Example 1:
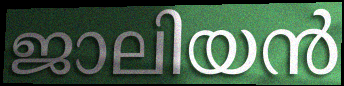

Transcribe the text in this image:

ജാലിയൻ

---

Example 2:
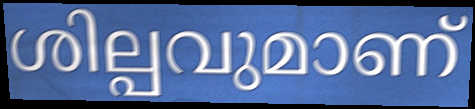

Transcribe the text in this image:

ശില്പവുമാണ്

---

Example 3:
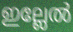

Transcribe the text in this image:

ഇല്ലേൽ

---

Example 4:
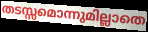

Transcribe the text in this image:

തടസ്സമൊന്നുമില്ലാതെ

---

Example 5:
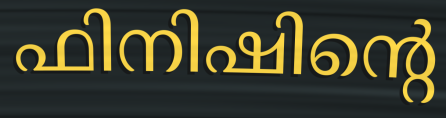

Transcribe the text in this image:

ഫിനിഷിന്റെ